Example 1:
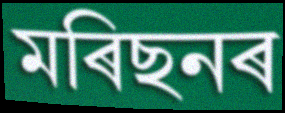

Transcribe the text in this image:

মৰিছনৰ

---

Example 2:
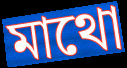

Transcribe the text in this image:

মাথো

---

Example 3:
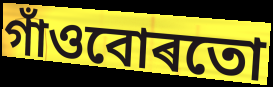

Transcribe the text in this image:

গাঁওবোৰতো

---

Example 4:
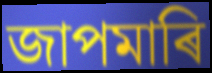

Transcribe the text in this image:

জাপমাৰি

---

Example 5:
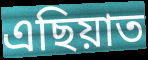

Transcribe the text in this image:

এছিয়াত